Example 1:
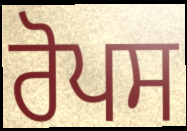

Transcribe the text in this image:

ਰੋਪਸ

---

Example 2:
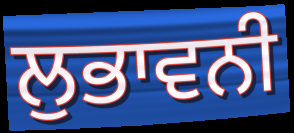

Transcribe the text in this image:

ਲੁਭਾਵਨੀ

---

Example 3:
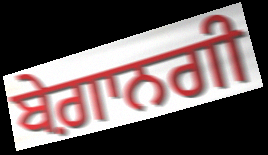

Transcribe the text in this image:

ਬੇਗ਼ਾਨਗੀ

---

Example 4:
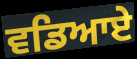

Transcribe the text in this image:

ਵਡਿਆਏ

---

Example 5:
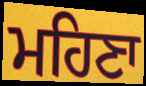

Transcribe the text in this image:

ਮਹਿਣਾ